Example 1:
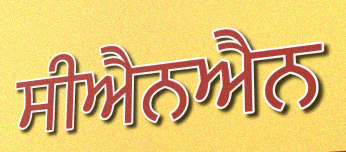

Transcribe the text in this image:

ਸੀਐਨਐਨ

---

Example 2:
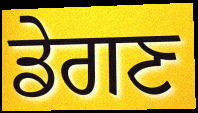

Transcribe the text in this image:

ਡੇਗਣ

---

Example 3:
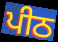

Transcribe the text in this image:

ਪੀਠ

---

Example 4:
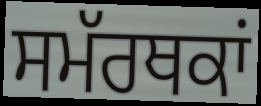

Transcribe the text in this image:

ਸਮੱਰਥਕਾਂ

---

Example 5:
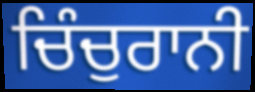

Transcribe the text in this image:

ਚਿੰਚੁਰਾਨੀ